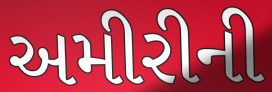
અમીરીની